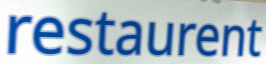
restaurent